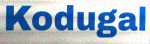
Kodugal